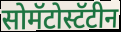
सोमॅटोस्टॅटीन